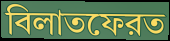
বিলাতফেরত